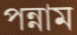
পন্নাম